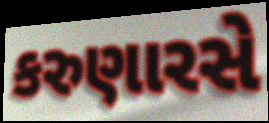
કરુણારસે